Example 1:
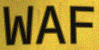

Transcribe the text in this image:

WAF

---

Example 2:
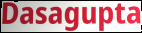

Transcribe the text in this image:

Dasagupta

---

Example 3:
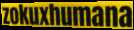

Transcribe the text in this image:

zokuxhumana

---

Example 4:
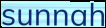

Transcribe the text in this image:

sunnah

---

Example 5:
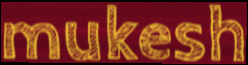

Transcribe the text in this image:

mukesh